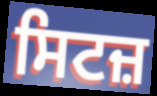
ਸਿਟਜ਼